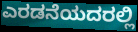
ಎರಡನೆಯದರಲ್ಲಿ